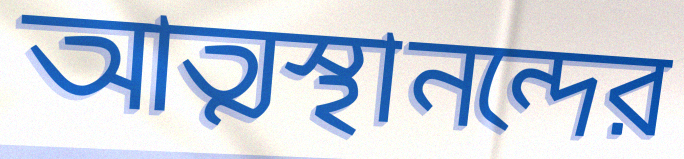
আত্মস্থানন্দের